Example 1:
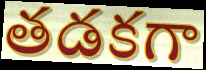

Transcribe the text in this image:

తడకగా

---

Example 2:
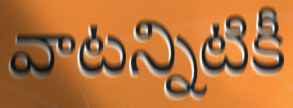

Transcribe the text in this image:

వాటన్నిటికీ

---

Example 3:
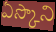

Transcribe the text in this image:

ఏస్కొని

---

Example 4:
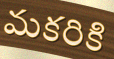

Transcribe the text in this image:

మకరికి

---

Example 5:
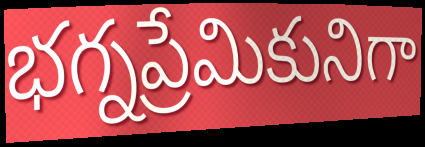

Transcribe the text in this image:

భగ్నప్రేమికునిగా